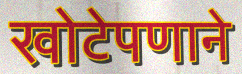
खोटेपणाने